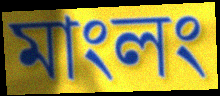
মাংলং